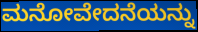
ಮನೋವೇದನೆಯನ್ನು